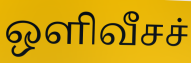
ஒளிவீசச்